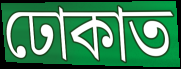
ঢোকাত